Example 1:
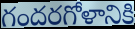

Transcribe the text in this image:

గందరగోళానికి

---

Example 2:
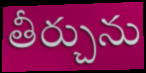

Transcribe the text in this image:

తీర్చును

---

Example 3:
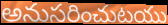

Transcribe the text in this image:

అనుసరించుటయు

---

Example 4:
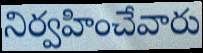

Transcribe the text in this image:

నిర్వహించేవారు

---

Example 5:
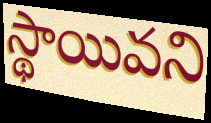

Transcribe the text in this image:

స్థాయివని